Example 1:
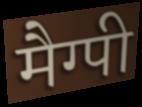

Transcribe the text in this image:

मैग्पी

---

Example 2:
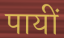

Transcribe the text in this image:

पायीं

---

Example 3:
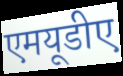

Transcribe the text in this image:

एमयूडीए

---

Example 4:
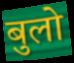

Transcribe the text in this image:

बुलो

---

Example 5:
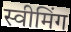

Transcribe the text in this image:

स्‍वीमिंग